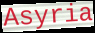
Asyria